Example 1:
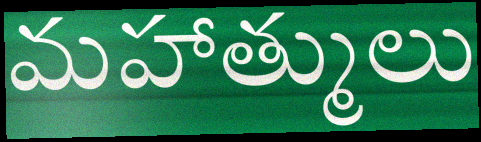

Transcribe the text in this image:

మహాత్ములు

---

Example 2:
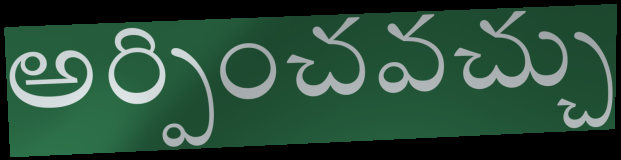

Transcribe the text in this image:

అర్పించవచ్చు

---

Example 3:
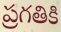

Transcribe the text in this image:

ప్రగతికి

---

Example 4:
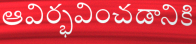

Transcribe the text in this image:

ఆవిర్భవించడానికి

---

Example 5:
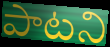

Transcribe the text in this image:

పాటని